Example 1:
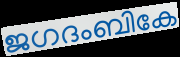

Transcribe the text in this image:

ജഗദംബികേ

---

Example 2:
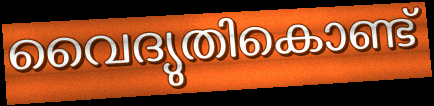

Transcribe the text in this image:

വൈദ്യുതികൊണ്ട്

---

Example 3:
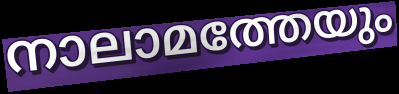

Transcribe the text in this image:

നാലാമത്തേയും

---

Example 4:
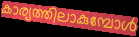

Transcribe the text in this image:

കാര്യത്തിലാകുമ്പോൾ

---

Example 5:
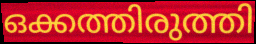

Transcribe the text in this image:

ഒക്കത്തിരുത്തി